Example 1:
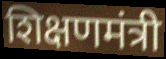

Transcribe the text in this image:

शिक्षणमंत्री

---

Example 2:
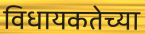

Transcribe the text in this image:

विधायकतेच्या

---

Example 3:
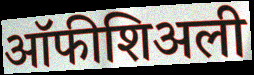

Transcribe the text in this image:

ऑफीशिअली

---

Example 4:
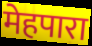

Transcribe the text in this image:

मेहपारा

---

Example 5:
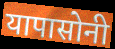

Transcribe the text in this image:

यापासोनी